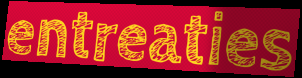
entreaties